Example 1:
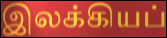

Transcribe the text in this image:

இலக்கியப்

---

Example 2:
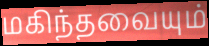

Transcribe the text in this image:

மகிந்தவையும்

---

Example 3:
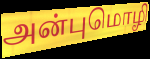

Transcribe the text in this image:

அன்புமொழி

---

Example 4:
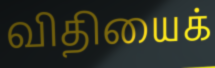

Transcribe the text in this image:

விதியைக்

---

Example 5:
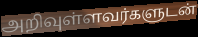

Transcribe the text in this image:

அறிவுள்ளவர்களுடன்